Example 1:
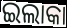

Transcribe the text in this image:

ଇଲାକା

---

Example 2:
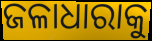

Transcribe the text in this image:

ଜଳାଧାରାକୁ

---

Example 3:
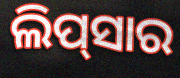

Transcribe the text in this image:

ଲିପ୍‌ସାର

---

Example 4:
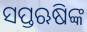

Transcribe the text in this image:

ସପ୍ତଋଷିଙ୍କ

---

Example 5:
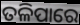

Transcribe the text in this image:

ତଳିପାରେ